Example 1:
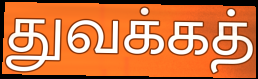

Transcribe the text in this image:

துவக்கத்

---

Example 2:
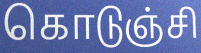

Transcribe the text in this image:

கொடுஞ்சி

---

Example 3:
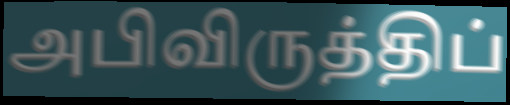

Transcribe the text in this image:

அபிவிருத்திப்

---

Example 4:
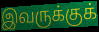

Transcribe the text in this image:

இவருக்குக்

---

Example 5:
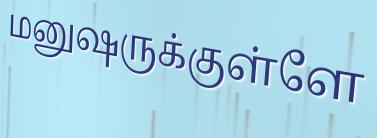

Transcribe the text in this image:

மனுஷருக்குள்ளே